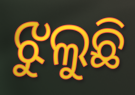
ଝୁଲୁଛି